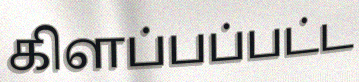
கிளப்பப்பட்ட